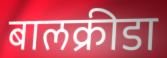
बालक्रीडा